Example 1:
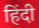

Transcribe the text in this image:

हिंदी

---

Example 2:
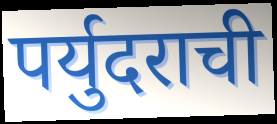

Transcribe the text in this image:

पर्युदराची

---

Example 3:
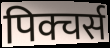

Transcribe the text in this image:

पिक्चर्स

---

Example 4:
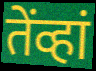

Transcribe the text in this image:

तेंव्हां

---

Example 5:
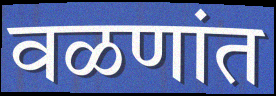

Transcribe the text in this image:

वळणांत